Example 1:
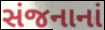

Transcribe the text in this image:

સંજનાનાં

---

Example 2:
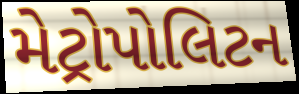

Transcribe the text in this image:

મેટ્રોપોલિટન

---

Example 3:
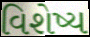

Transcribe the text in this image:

વિશેષ્ય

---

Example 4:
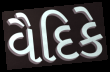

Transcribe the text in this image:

વૈદિકે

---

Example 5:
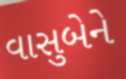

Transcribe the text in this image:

વાસુબેને